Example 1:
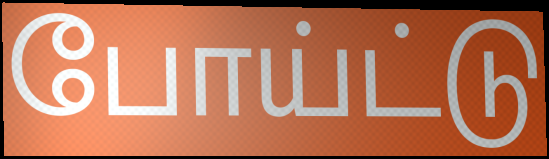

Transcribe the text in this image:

போய்ட்டு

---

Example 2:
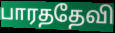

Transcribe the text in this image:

பாரததேவி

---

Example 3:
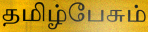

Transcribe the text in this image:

தமிழ்பேசும்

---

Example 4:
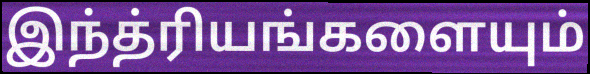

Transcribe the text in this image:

இந்த்ரியங்களையும்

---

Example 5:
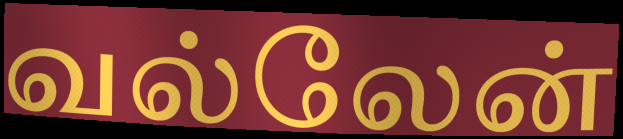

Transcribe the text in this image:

வல்லேன்